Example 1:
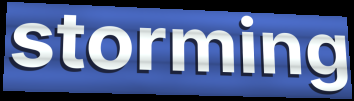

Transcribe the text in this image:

storming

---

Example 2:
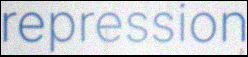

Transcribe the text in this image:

repression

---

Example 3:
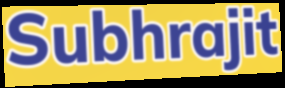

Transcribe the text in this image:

Subhrajit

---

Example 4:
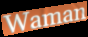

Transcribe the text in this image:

Waman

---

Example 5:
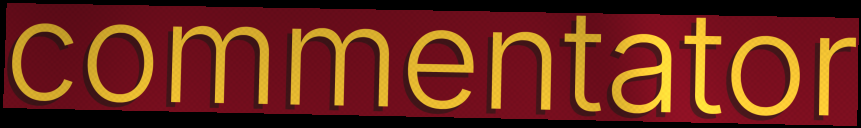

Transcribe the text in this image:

commentator